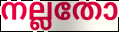
നല്ലതോ